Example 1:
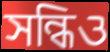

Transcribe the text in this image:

সন্ধিও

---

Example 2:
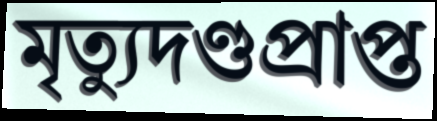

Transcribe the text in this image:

মৃত্যুদণ্ডপ্রাপ্ত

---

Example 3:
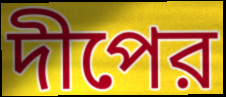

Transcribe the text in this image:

দীপের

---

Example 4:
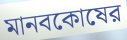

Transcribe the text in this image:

মানবকোষের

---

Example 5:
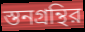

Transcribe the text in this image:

স্তনগ্রন্থির